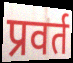
प्रवर्त